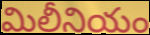
మిలీనియం